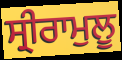
ਸ੍ਰੀਰਾਮੁਲੂ